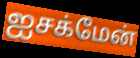
ஐசக்மேன்